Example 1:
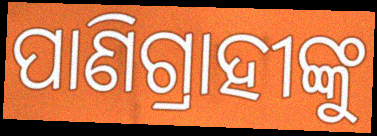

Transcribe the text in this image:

ପାଣିଗ୍ରାହୀଙ୍କୁ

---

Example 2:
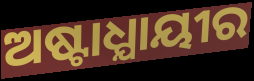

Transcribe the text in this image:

ଅଷ୍ଟାଧ୍ଯାୟୀର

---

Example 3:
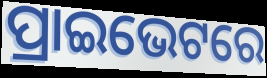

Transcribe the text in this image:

ପ୍ରାଇଭେଟରେ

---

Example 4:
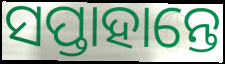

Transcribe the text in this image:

ସପ୍ତାହାନ୍ତେ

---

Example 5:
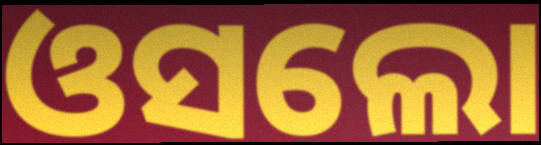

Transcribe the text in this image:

ଓସଲୋ